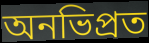
অনভিপ্রত